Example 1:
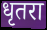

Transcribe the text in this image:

धृतरा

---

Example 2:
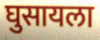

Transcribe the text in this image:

घुसायला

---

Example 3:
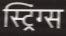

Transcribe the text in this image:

स्ट्रिंग्स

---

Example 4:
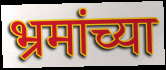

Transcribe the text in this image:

भ्रमांच्या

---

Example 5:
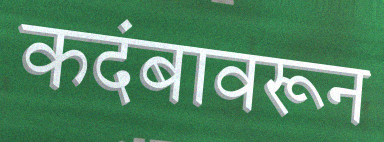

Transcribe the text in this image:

कदंबावरून